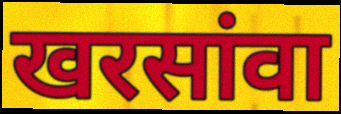
खरसांवा